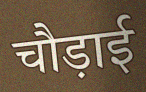
चौड़ाई